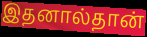
இதனால்தான்